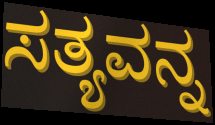
ಸತ್ಯವನ್ನ